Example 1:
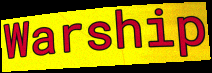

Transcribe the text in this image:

Warship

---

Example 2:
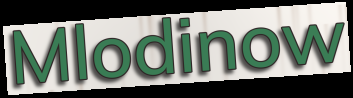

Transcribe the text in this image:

Mlodinow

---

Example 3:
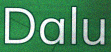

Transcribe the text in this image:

Dalu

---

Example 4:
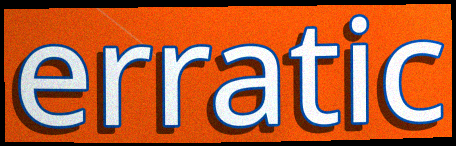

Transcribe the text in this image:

erratic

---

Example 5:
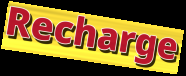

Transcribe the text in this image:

Recharge